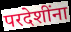
परदेशींना